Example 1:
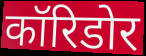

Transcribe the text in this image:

कॉरिडोर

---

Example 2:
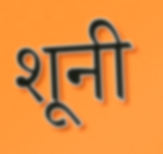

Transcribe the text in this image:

शूनी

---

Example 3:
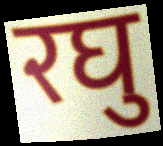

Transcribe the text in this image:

रघु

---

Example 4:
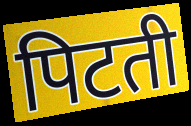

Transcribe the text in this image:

पिटती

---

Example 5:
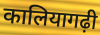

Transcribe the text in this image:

कालियागढ़ी